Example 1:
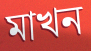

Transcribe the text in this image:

মাখন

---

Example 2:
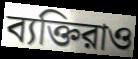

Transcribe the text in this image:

ব্যক্তিরাও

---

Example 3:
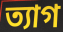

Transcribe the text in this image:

ত্যাগ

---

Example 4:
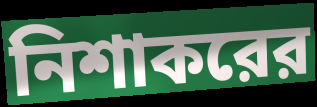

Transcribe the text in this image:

নিশাকরের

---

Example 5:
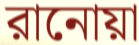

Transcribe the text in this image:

রানোয়া